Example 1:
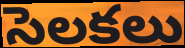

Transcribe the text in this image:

సెలకలు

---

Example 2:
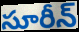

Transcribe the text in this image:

సూరీన్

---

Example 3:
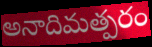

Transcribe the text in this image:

అనాదిమత్పరం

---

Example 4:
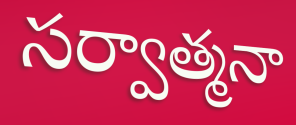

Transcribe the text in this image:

సర్వాత్మనా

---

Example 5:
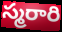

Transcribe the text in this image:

స్మరారి